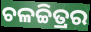
ଚଳଚ୍ଚିତ୍ରର